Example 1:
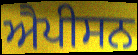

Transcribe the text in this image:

ਐਪੀਸਨ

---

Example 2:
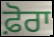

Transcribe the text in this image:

ਫ਼ੋਰਾ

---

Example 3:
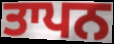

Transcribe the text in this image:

ਤਾਪਨ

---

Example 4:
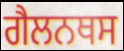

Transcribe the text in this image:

ਗੈਲਨਥਸ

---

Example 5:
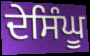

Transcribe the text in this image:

ਦੇਸਿੰਘੂ